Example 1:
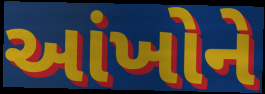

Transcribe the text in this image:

આંખોને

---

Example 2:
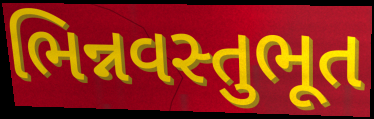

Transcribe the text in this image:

ભિન્નવસ્તુભૂત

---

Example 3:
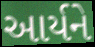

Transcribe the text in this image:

આર્યને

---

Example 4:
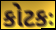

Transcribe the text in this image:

કોટકઃ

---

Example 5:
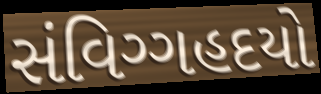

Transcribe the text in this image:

સંવિગ્ગહદયો